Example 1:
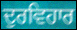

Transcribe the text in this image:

ਦੁਰਵਿਹਾਰ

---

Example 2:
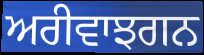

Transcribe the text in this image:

ਅਰੀਵਾਝਗਨ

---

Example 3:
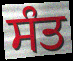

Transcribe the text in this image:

ਸੰਤ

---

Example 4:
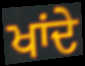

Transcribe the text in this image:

ਖਾਂਦੇ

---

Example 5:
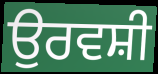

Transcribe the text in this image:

ਉਰਵਸ਼ੀ